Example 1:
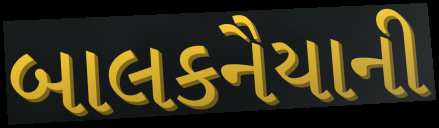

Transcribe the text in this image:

બાલકનૈયાની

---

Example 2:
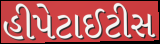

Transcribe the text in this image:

હીપેટાઈટીસ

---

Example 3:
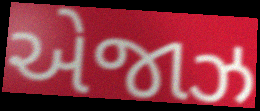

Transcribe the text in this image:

એજાઝ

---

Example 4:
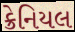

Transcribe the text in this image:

ક્રેનિયલ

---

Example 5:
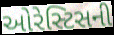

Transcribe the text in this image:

ઓરેસ્ટિસની